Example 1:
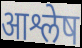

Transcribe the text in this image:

आश्लेष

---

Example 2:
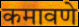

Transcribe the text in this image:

कमावणे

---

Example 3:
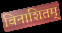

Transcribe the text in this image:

विनाशितम्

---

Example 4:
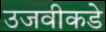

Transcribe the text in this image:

उजवीकडे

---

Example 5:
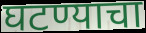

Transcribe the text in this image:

घटण्याचा